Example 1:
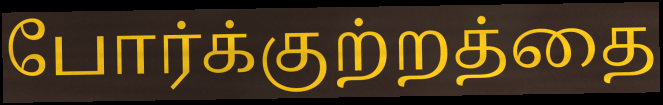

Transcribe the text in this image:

போர்க்குற்றத்தை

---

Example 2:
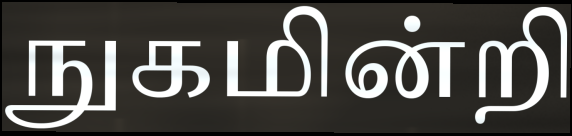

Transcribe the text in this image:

நுகமின்றி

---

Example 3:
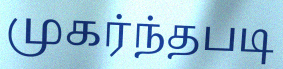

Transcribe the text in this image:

முகர்ந்தபடி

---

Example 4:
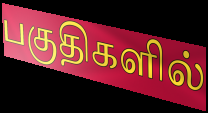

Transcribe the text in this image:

பகுதிகளில்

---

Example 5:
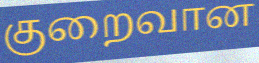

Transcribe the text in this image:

குறைவான